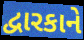
દ્વારકાને